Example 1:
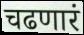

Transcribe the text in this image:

चढणारं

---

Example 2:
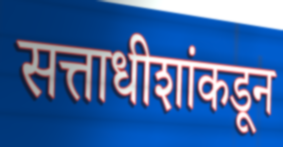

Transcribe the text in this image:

सत्ताधीशांकडून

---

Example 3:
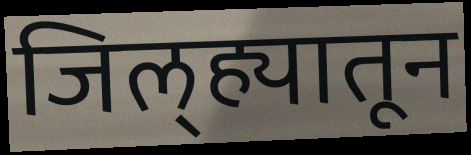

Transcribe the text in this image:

जिल्ह्यातून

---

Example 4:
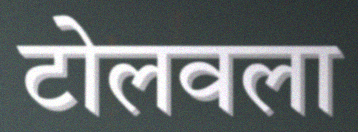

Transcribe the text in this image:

टोलवला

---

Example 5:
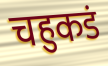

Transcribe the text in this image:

चहुकडं